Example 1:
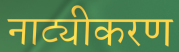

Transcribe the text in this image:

नाट्यीकरण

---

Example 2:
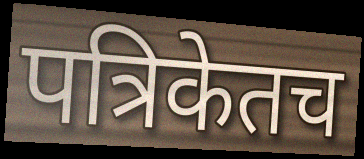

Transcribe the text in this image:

पत्रिकेतच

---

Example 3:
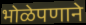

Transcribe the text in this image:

भोळेपणाने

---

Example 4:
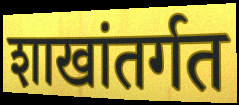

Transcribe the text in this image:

शाखांतर्गत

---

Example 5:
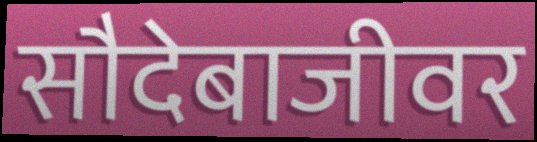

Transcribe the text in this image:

सौदेबाजीवर